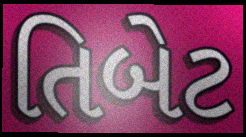
તિબેટ